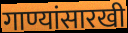
गाण्यांसारखी